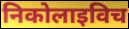
निकोलाइविच